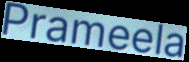
Prameela